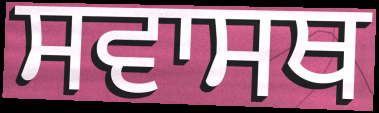
ਸਵਾਸਥ